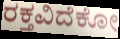
ರಕ್ತವಿದೆಕೋ